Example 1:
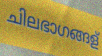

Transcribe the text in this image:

ചിലഭാഗങ്ങള്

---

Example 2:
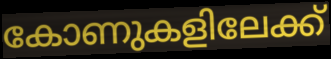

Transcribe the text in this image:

കോണുകളിലേക്ക്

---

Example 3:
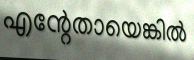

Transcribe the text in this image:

എന്റേതായെങ്കിൽ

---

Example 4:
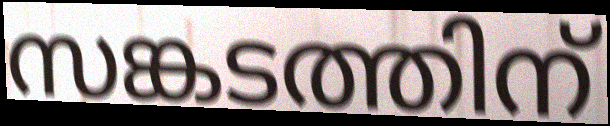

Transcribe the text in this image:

സങ്കടത്തിന്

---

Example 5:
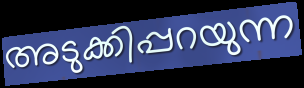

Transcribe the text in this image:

അടുക്കിപ്പറയുന്ന